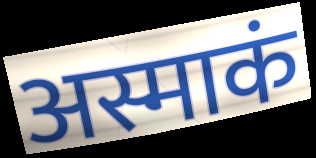
अस्माकं